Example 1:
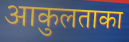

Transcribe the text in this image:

आकुलताका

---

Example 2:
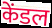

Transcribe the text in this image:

केंडल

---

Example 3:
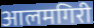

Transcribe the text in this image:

आलमगिरी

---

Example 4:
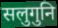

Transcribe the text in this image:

सलुगुनि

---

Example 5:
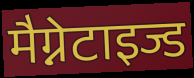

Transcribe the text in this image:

मैग्नेटाइज्ड